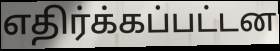
எதிர்க்கப்பட்டன